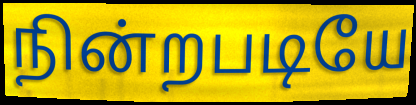
நின்றபடியே